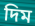
দিম